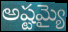
అష్టమ్యై